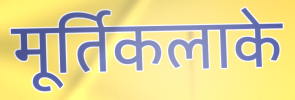
मूर्तिकलाके